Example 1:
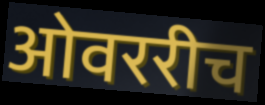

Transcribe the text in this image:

ओवररीच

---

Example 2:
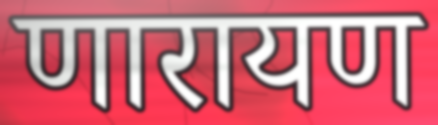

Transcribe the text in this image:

णारायण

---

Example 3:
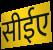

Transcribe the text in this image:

सीईए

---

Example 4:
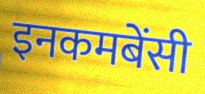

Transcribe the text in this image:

इनकमबेंसी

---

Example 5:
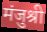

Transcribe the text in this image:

मंजुश्री